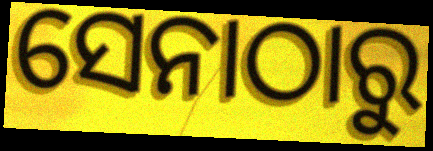
ସେନାଠାରୁ